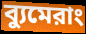
ব্যুমেরাং